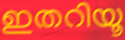
ഇതറിയൂ